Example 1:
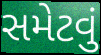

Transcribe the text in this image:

સમેટવું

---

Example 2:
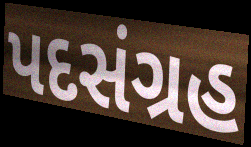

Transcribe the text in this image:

પદસંગ્રહ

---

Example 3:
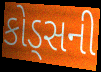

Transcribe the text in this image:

કોડ્સની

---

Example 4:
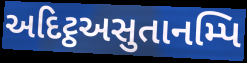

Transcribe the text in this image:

અદિટ્ઠઅસુતાનમ્પિ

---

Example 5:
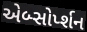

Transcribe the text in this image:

એબ્સોર્પ્શન